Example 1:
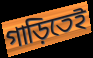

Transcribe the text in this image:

গাড়িতেই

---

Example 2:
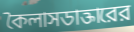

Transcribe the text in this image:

কৈলাসডাক্তারের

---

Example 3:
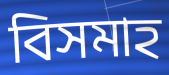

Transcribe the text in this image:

বিসমাহ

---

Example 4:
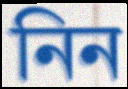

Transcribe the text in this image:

নিন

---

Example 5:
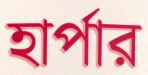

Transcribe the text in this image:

হার্পার